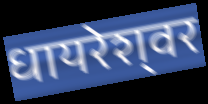
धायरेश्वर